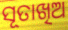
ସୂତାଖିଅ